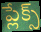
ప్లేక్స్